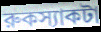
রুকস্যাকটা